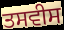
ਤਸਵੀਸ